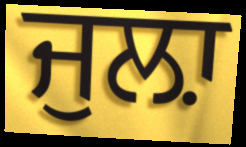
ਜੁਲ਼ਾ